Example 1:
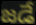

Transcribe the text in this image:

జడే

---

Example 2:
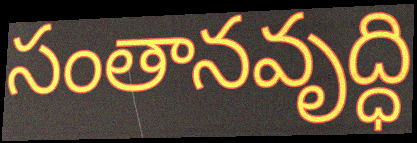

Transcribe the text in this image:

సంతానవృద్ధి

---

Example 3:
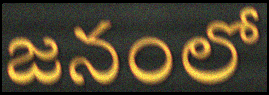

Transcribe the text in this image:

జనంలో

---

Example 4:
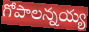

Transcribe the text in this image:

గోపాలన్నయ్య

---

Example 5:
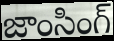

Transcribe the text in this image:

జాంసింగ్